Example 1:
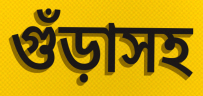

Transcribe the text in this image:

গুঁড়াসহ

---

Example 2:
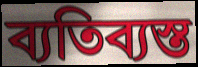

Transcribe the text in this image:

ব্যতিব্যস্ত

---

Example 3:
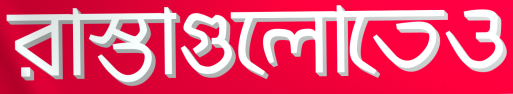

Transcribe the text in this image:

রাস্তাগুলোতেও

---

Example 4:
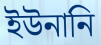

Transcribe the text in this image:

ইউনানি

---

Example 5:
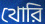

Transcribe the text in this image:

থোরি